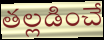
తల్లడించే